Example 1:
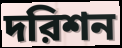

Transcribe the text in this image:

দরিশন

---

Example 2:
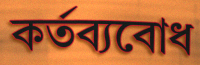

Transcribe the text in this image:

কর্তব্যবোধ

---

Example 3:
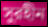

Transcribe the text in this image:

সুরহীন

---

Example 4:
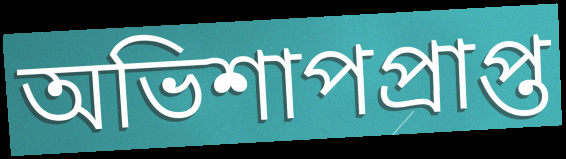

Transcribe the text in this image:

অভিশাপপ্রাপ্ত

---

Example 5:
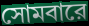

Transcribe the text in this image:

সোমবারে